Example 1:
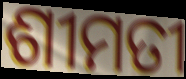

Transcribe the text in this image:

ଶୀମତୀ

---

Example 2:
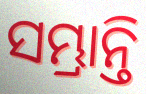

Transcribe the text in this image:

ସମ୍ଭ୍ରାନ୍ତି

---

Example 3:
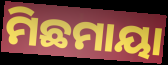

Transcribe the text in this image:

ମିଛମାୟା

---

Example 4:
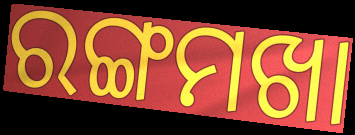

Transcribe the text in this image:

ରଙ୍ଗମଖା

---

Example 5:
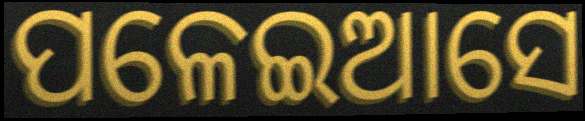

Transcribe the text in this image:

ପଳେଇଆସେ